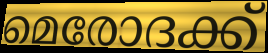
മെരോദക്ക്